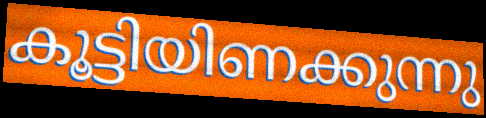
കൂട്ടിയിണക്കുന്നു